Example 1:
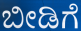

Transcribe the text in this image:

ಬೀಡಿಗೆ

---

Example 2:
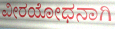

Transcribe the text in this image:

ವೀರಯೋಧನಾಗಿ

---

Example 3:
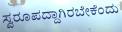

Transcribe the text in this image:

ಸ್ವರೂಪದ್ದಾಗಿರಬೇಕೆಂದು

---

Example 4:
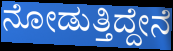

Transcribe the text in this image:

ನೋಡುತ್ತಿದ್ದೇನೆ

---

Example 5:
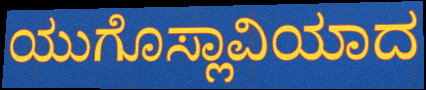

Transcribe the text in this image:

ಯುಗೊಸ್ಲಾವಿಯಾದ